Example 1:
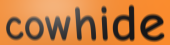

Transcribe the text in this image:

cowhide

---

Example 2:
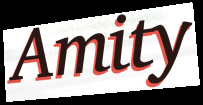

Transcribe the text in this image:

Amity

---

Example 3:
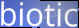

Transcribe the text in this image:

biotic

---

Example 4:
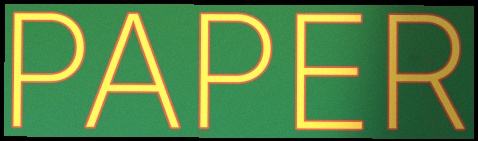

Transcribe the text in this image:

PAPER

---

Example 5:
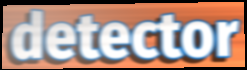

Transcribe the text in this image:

detector